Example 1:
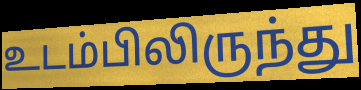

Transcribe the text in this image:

உடம்பிலிருந்து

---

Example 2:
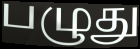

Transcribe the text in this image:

பழுது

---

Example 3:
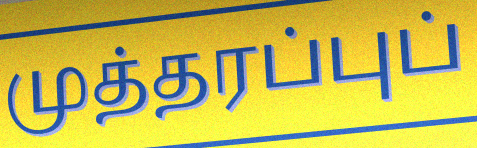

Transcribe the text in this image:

முத்தரப்புப்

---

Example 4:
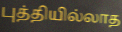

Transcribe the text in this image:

புத்தியில்லாத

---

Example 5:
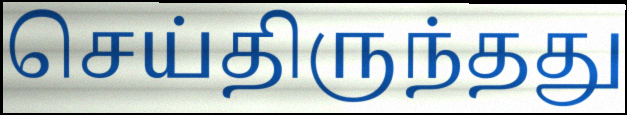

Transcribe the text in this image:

செய்திருந்தது